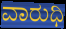
ವಾರುಧಿ